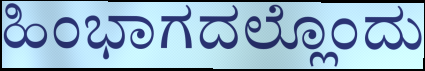
ಹಿಂಭಾಗದಲ್ಲೊಂದು